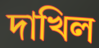
দাখিল